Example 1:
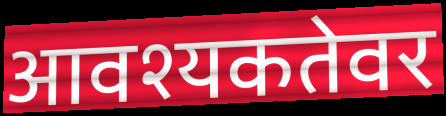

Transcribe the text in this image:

आवश्यकतेवर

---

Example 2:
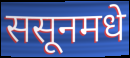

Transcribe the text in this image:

ससूनमधे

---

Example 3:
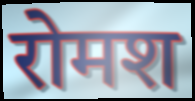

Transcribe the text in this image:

रोमश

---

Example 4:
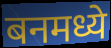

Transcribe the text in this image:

बनमध्ये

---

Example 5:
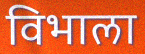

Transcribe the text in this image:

विभाला